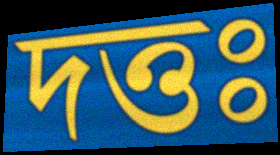
দত্তঃ